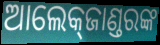
ଆଲେକ୍‌ଜାଣ୍ଡରଙ୍କ